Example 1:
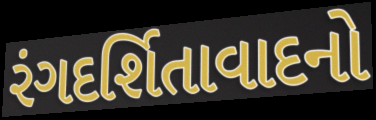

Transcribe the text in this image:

રંગદર્શિતાવાદનો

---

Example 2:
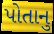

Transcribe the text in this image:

પોતાનુ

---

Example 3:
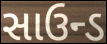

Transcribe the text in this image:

સાઉન્ડ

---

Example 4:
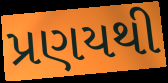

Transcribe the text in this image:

પ્રણયથી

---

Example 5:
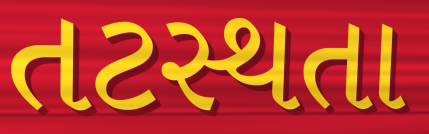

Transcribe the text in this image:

તટસ્થતા